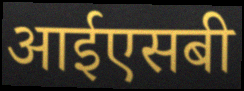
आईएसबी